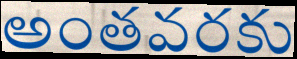
అంతవరకు